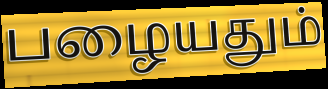
பழையதும்